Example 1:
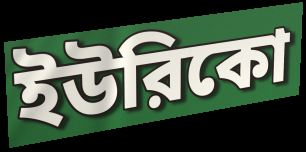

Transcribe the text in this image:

ইউরিকো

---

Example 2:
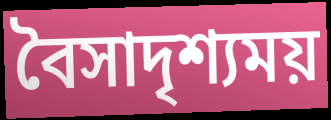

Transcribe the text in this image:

বৈসাদৃশ্যময়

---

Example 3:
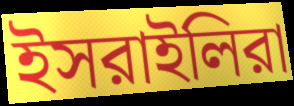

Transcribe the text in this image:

ইসরাইলিরা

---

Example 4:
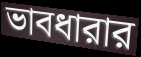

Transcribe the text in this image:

ভাবধারার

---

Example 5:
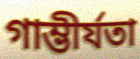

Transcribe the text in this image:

গাম্ভীর্যতা